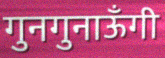
गुनगुनाऊँगी